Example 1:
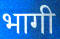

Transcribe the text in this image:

भागी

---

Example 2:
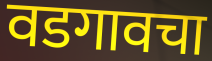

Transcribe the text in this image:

वडगावचा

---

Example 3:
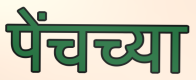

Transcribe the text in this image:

पेंचच्या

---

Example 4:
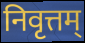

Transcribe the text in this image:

निवृत्तम्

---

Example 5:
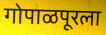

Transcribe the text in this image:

गोपाळपूरला